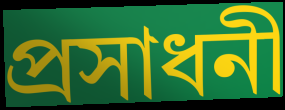
প্রসাধনী